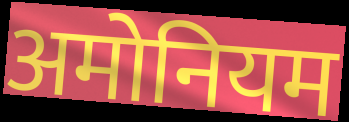
अमोनियम